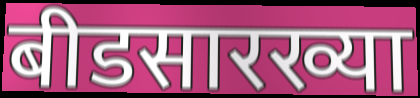
बीडसारख्या